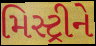
મિસ્ટ્રીને